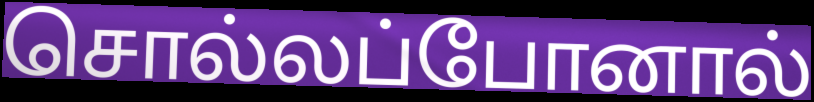
சொல்லப்போனால்